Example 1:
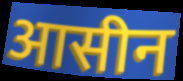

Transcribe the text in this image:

आसीन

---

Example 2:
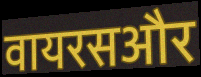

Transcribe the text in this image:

वायरसऔर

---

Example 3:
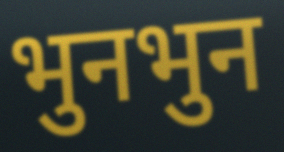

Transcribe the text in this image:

भुनभुन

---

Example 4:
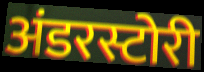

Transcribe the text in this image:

अंडरस्टोरी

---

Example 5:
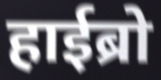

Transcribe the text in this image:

हाईब्रो